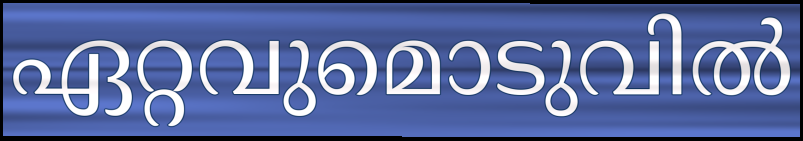
ഏറ്റവുമൊടുവിൽ